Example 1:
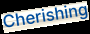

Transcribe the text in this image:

Cherishing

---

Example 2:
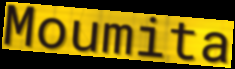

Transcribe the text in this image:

Moumita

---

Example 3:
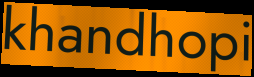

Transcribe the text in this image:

khandhopi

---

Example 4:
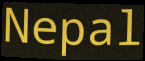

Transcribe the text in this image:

Nepal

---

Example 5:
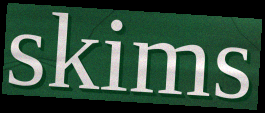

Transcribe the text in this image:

skims